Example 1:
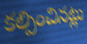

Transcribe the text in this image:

కల్పించినట్లు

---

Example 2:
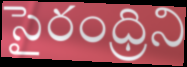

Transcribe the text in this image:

సైరంధ్రిని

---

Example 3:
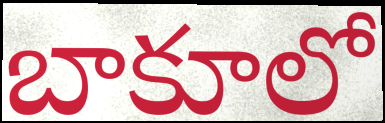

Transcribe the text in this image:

బాకూలో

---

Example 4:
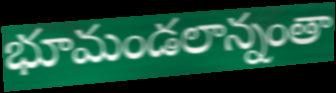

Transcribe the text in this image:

భూమండలాన్నంతా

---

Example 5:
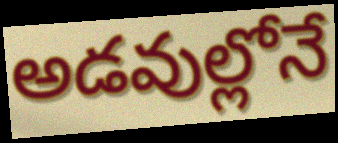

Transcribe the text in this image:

అడవుల్లోనే